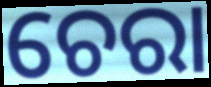
ଚେରା